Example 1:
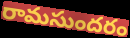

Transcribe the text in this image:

రామసుందరం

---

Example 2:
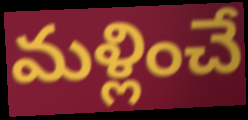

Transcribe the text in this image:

మళ్లించే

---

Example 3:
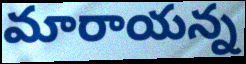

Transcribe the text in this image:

మారాయన్న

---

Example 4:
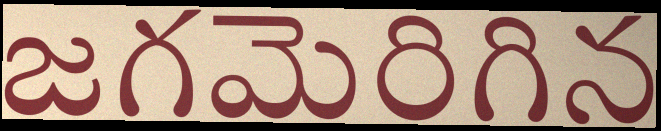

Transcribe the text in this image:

జగమెరిగిన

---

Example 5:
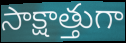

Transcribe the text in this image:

సాక్షాత్తుగా